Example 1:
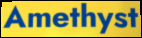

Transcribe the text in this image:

Amethyst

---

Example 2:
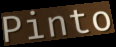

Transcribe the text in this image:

Pinto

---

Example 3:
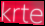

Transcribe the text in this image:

krte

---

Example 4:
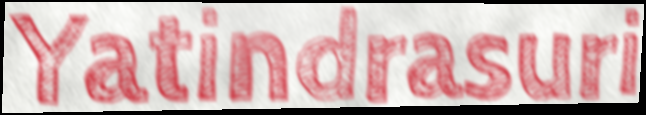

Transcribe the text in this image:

Yatindrasuri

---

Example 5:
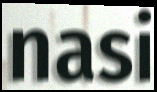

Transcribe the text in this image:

nasi